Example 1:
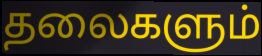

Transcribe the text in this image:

தலைகளும்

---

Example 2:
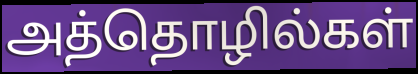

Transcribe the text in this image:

அத்தொழில்கள்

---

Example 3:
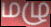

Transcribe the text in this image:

மழு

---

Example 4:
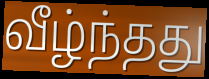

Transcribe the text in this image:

வீழ்ந்தது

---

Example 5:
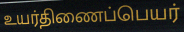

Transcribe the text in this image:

உயர்திணைப்பெயர்